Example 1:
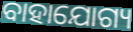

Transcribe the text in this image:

ବାହାଯୋଗ୍ୟ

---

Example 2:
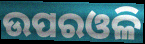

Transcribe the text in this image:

ଉପରଓଳି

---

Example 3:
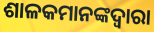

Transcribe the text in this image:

ଶାଳକମାନଙ୍କଦ୍ୱାରା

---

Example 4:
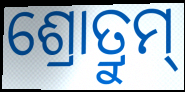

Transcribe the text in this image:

ଶ୍ରୋତ୍ରୁମ୍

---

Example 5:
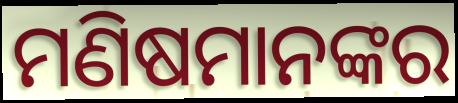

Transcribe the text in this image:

ମଣିଷମାନଙ୍କର